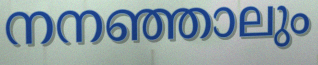
നനഞ്ഞാലും